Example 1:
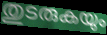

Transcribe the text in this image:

തുടരുകയും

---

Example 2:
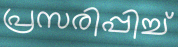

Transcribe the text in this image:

പ്രസരിപ്പിച്ച്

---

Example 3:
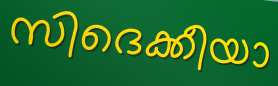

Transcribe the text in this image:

സിദെക്കീയാ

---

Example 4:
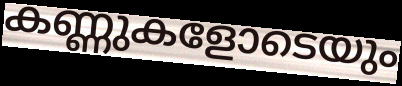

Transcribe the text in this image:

കണ്ണുകളോടെയും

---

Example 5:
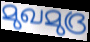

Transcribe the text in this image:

മുഖമുദ്ര